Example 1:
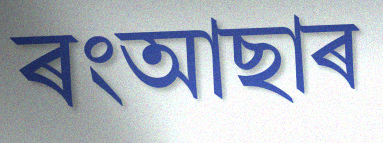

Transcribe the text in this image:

ৰংআছাৰ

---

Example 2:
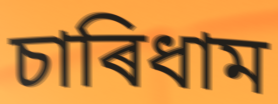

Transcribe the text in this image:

চাৰিধাম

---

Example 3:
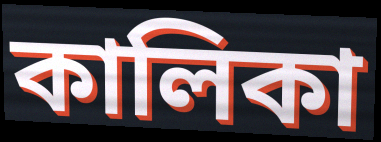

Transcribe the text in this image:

কালিকা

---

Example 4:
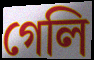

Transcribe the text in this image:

গেলি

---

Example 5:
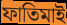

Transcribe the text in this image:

ফাতিমাই